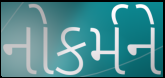
નોકર્મને